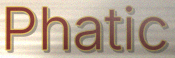
Phatic